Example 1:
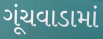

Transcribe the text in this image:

ગૂંચવાડામાં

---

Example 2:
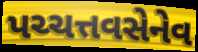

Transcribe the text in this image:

પચ્ચત્તવસેનેવ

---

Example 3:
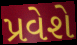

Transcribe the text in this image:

પ્રવેશે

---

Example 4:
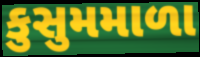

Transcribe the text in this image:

કુસુમમાળા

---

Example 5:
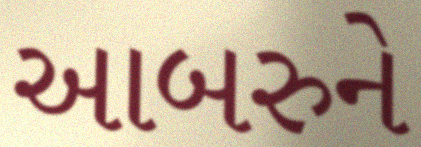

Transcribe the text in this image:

આબરુને